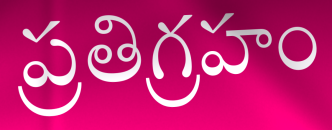
ప్రతిగ్రహం